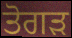
ਤੋਗੜ